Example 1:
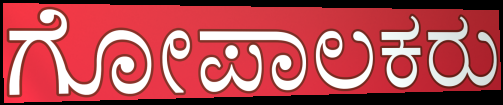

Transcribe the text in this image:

ಗೋಪಾಲಕರು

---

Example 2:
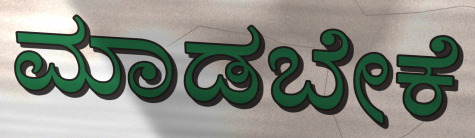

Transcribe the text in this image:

ಮಾಡಬೇಕೆ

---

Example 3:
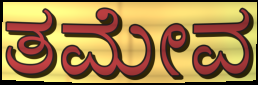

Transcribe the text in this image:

ತಮೇವ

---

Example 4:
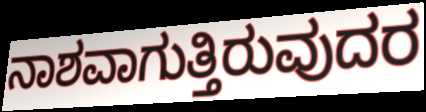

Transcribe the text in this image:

ನಾಶವಾಗುತ್ತಿರುವುದರ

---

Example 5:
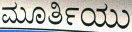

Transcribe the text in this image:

ಮೂರ್ತಿಯು